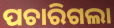
ପଚାରିଗଲା